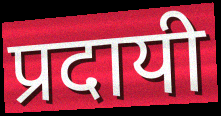
प्रदायी